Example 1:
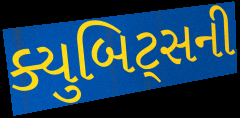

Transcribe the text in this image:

ક્યુબિટ્સની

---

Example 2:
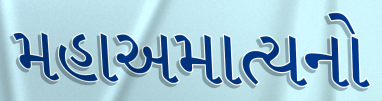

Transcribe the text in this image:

મહાઅમાત્યનો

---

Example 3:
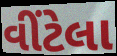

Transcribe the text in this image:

વીંટેલા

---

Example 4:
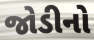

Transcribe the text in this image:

જોડીનો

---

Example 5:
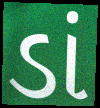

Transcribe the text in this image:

ડાં